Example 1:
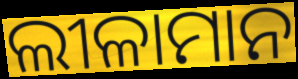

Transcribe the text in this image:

ଲୀଳାମାନ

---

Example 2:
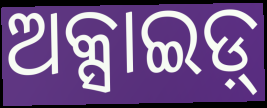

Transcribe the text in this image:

ଅକ୍ସାଇଡ଼୍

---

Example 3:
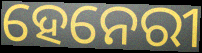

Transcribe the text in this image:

ହେନେରୀ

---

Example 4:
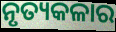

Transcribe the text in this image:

ନୃତ୍ୟକଳାର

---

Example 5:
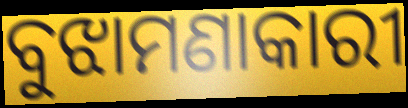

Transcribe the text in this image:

ବୁଝାମଣାକାରୀ